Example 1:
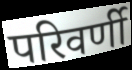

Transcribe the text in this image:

परिवर्णी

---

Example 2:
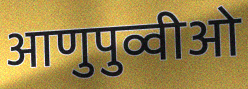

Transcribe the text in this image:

आणुपुव्वीओ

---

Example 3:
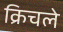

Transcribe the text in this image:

क्रिचले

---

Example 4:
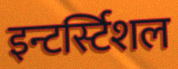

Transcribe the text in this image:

इन्टर्स्टिशल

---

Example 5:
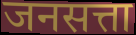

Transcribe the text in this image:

जनसत्ता